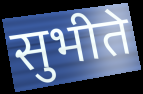
सुभीते